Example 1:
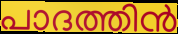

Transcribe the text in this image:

പാദത്തിൻ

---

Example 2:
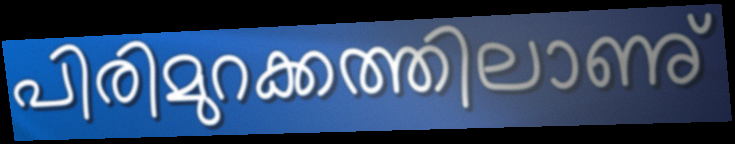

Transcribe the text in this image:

പിരിമുറക്കത്തിലാണു്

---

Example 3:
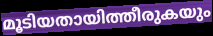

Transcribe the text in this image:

മൂടിയതായിത്തീരുകയും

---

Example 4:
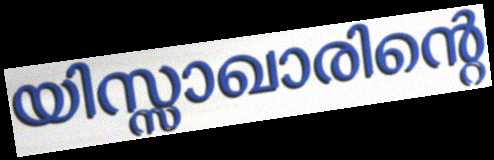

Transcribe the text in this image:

യിസ്സാഖാരിന്റെ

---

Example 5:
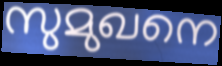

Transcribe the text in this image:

സുമുഖനെ